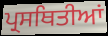
ਪ੍ਰਸਥਿਤੀਆਂ